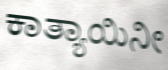
ಕಾತ್ಯಾಯಿನೀ